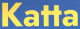
Katta